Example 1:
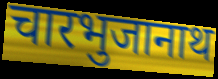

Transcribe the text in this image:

चारभुजानाथ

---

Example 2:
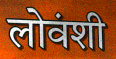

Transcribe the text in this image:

लोवंशी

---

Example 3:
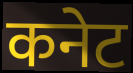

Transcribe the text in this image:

कनेट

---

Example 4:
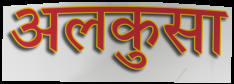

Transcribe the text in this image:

अलकुसा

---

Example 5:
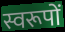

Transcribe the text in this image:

स्वरूपों